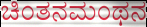
ಚಿಂತನಮಂಥನ